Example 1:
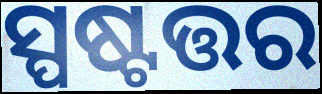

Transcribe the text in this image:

ସ୍ପଷ୍ଟତ୍ତର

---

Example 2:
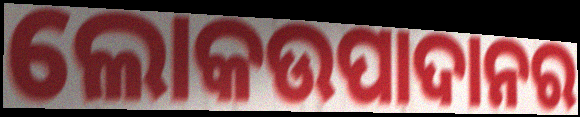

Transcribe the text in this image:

ଲୋକଉପାଦାନର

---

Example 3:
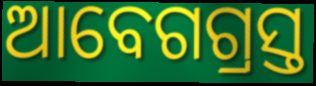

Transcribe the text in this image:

ଆବେଗଗ୍ରସ୍ତ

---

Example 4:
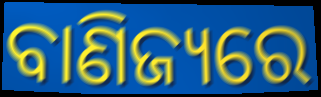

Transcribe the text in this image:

ବାଣିଜ୍ୟରେ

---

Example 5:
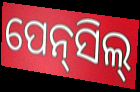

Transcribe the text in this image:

ପେନ୍‌ସିଲ୍